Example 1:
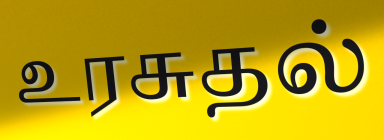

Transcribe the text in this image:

உரசுதல்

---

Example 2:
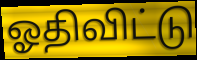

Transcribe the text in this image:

ஓதிவிட்டு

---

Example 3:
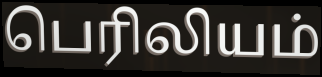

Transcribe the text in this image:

பெரிலியம்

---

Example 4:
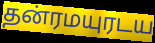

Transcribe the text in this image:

தன்ரமயுரடய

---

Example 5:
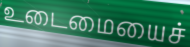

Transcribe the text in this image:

உடைமையைச்